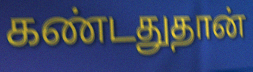
கண்டதுதான்